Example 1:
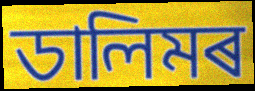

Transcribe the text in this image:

ডালিমৰ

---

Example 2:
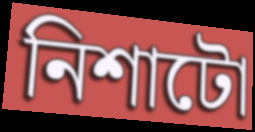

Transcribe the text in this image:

নিশাটো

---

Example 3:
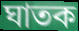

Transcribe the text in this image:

ঘাতক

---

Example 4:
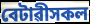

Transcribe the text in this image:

বেটাৱীসকল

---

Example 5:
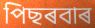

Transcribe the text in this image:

পিছৰবাৰ